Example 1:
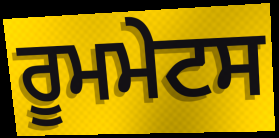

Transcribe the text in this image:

ਰੂਮਮੇਟਸ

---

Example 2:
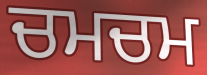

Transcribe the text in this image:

ਚਮਚਮ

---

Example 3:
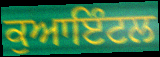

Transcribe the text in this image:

ਕੁਆਇੰਟਲ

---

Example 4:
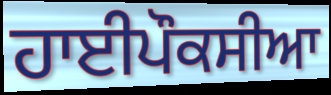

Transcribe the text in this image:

ਹਾਈਪੌਕਸੀਆ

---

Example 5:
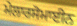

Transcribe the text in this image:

ਮੇਲਾਰਸੋਮਾਈਨ